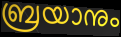
ബ്രയാനും